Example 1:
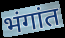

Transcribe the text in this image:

भंगांत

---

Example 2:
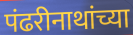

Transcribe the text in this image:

पंढरीनाथांच्या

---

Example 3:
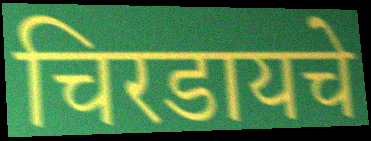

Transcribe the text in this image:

चिरडायचे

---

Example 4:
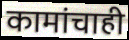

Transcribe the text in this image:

कामांचाही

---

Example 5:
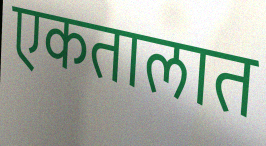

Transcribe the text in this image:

एकतालात